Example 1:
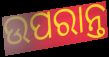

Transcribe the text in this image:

ଉପରାନ୍ତ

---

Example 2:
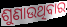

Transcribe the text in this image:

ଶୁଣାଉଥିବାର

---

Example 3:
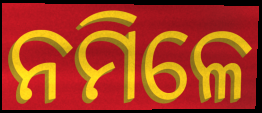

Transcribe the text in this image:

ନମିଳେ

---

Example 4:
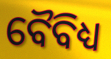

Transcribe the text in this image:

ବୈବିଧ୍ୟ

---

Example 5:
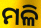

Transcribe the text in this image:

ମଳି